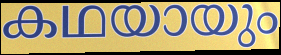
കഥയായും